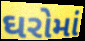
ઘરોમાં